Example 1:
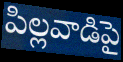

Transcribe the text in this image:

పిల్లవాడిపై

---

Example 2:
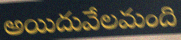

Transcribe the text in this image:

అయిదువేలమంది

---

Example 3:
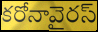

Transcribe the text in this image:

కరోనావైరస్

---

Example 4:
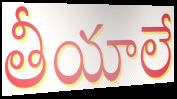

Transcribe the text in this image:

తీయాలే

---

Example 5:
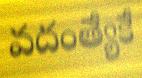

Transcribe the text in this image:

వదంత్యేకే